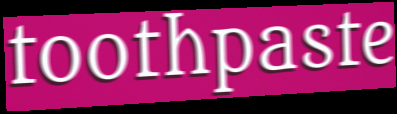
toothpaste